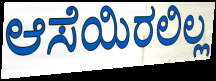
ಆಸೆಯಿರಲಿಲ್ಲ